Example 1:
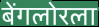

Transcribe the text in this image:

बेंगलोरला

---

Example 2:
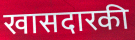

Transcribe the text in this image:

खासदारकी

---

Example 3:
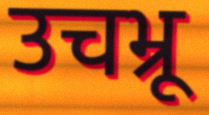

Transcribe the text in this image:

उचभ्रू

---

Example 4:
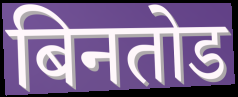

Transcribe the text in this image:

बिनतोड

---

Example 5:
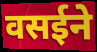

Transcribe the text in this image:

वसईने